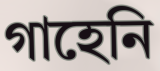
গাহেনি